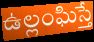
ఉల్లంఘిస్తే